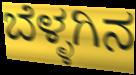
ಬೆಳ್ಳಗಿನ